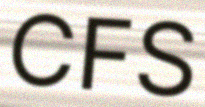
CFS